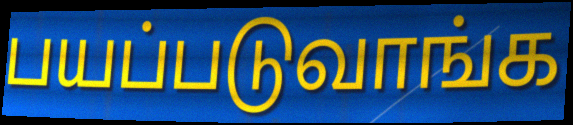
பயப்படுவாங்க